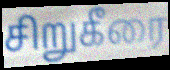
சிறுகீரை